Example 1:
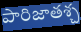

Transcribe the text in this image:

పారిజాతశ్చ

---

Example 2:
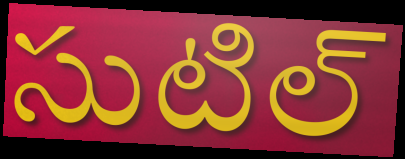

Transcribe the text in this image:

సుటిల్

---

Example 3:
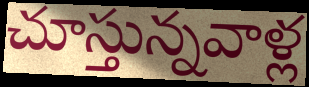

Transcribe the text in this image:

చూస్తున్నవాళ్ల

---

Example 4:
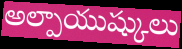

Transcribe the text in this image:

అల్పాయుష్కులు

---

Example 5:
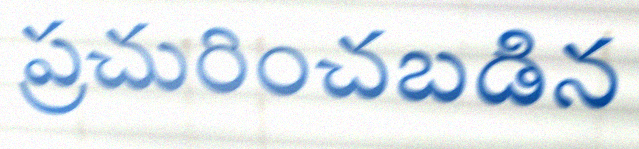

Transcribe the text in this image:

ప్రచురించబడిన